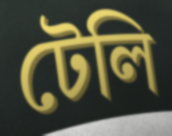
টেলি